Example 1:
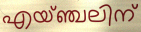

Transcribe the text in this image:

എയ്ഞ്ചലിന്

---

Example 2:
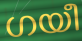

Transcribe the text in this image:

ഗയീ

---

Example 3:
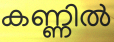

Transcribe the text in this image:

കണ്ണിൽ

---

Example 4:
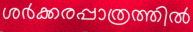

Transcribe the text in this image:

ശർക്കരപ്പാത്രത്തിൽ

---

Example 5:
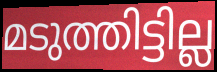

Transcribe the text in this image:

മടുത്തിട്ടില്ല